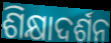
ଶିକ୍ଷାଦର୍ଶନ